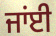
ਜਾਂਈ